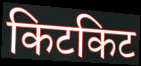
किटकिट